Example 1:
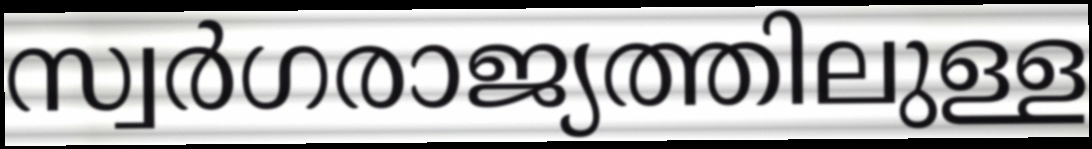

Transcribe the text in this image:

സ്വർഗരാജ്യത്തിലുള്ള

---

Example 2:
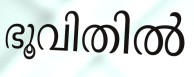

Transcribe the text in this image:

ഭൂവിതിൽ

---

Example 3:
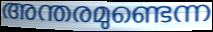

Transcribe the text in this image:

അന്തരമുണ്ടെന്ന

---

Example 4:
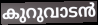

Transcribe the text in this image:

കുറുവാടൻ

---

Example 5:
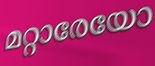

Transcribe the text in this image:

മറ്റാരേയോ